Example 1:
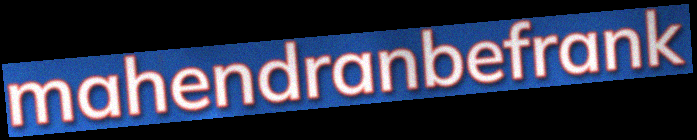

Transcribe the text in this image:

mahendranbefrank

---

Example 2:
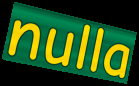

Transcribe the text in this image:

nulla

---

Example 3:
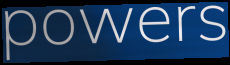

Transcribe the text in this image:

powers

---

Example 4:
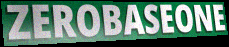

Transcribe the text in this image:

ZEROBASEONE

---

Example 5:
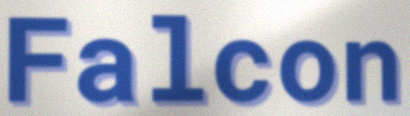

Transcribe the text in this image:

Falcon